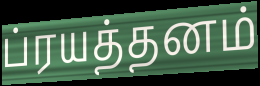
ப்ரயத்தனம்